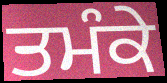
ਤਮੰਕੇ